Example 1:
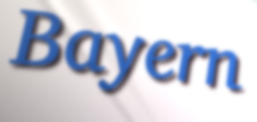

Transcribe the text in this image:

Bayern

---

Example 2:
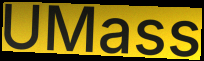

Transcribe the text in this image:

UMass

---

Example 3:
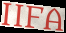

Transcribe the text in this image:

IIFA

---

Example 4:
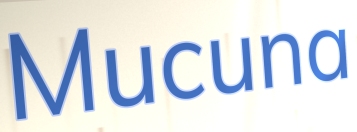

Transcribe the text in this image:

Mucuna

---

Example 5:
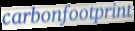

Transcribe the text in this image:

carbonfootprint